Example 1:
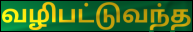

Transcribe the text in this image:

வழிபட்டுவந்த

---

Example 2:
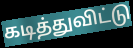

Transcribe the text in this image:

கடித்துவிட்டு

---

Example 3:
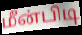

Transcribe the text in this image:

மீன்பிடி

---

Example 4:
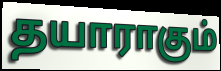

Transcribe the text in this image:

தயாராகும்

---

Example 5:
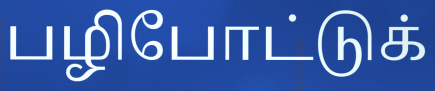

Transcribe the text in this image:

பழிபோட்டுக்